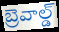
బ్రెవాల్డ్